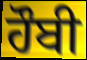
ਹੌਬੀ